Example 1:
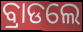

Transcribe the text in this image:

ବ୍ରାଡଲେ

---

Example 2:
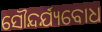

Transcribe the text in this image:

ସୌନ୍ଦର୍ଯ୍ୟବୋଧ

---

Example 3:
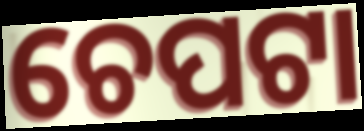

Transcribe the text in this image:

ଚେପଟା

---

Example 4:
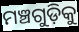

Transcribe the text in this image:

ମଞ୍ଚଗୁଡ଼ିକୁ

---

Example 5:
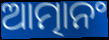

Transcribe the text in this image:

ଆତ୍ମାନଂ